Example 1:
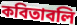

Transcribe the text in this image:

কবিতাবলি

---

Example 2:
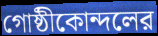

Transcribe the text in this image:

গোষ্ঠীকোন্দলের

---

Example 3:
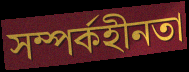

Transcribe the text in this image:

সম্পর্কহীনতা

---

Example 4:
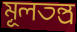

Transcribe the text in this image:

মূলতন্ত্র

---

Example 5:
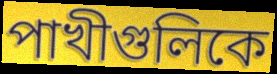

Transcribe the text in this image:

পাখীগুলিকে